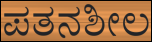
ಪತನಶೀಲ